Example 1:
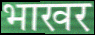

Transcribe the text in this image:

भाखर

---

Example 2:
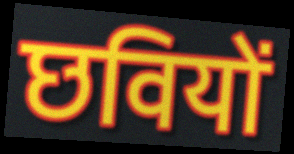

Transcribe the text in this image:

छवियों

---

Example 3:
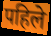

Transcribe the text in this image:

पहिले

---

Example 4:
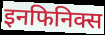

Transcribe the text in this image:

इनफिनिक्स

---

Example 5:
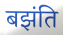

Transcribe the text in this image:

बझंति